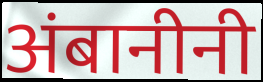
अंबानीनी